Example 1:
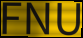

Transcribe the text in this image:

FNU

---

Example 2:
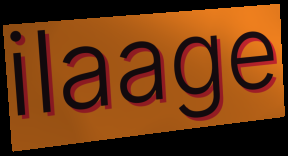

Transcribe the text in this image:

ilaage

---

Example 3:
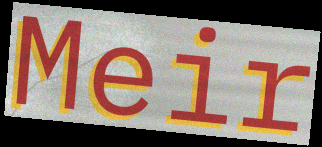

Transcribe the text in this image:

Meir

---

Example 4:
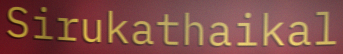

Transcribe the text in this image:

Sirukathaikal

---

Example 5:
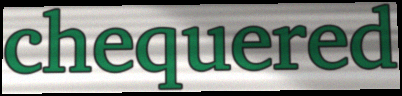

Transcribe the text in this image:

chequered